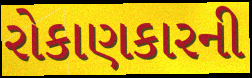
રોકાણકારની